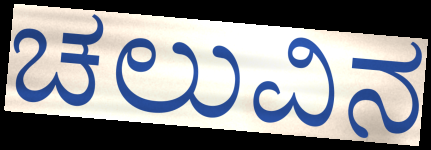
ಚಲುವಿನ